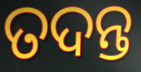
ତଦନ୍ତ